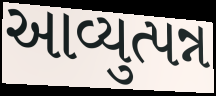
આવ્યુત્પન્ન